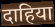
दाहिया